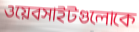
ওয়েবসাইটগুলোকে